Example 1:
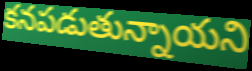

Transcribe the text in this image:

కనపడుతున్నాయని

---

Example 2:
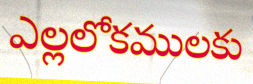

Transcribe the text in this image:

ఎల్లలోకములకు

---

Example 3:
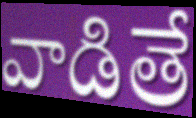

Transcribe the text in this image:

వాడితే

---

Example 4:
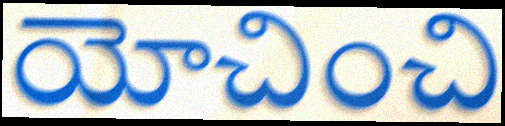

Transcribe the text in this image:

యోచించి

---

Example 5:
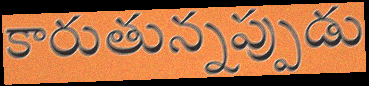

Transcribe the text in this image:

కారుతున్నప్పుడు